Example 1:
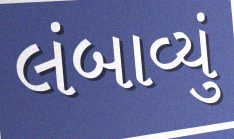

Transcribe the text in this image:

લંબાવ્યું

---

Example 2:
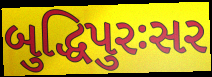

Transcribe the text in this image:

બુદ્ધિપુરઃસર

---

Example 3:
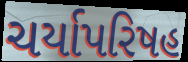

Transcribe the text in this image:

ચર્યાપરિષહ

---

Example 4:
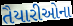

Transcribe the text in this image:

તૈયારીઓના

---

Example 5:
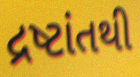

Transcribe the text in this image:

દ્રષ્ટાંતથી